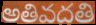
అతివదతి